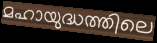
മഹായുദ്ധത്തിലെ